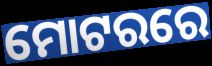
ମୋଟରରେ